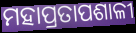
ମହାପ୍ରତାପଶାଳୀ